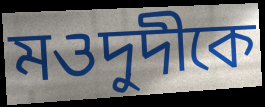
মওদুদীকে